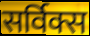
सर्विक्स